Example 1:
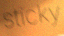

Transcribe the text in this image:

sticky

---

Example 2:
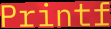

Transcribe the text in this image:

Printf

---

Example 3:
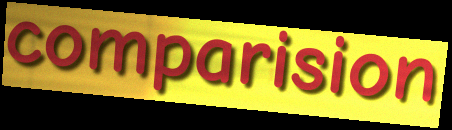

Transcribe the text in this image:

comparision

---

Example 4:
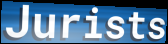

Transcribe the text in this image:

Jurists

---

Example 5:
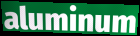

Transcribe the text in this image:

aluminum